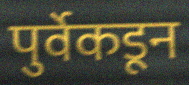
पुर्वेकडून